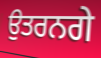
ਉਤਰਨਗੇ